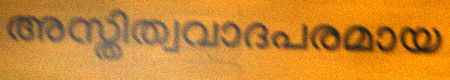
അസ്തിത്വവാദപരമായ